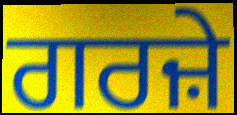
ਗਰਜ਼ੇ